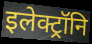
इलेक्ट्रॉनि